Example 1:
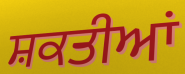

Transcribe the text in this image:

ਸ਼ਕਤੀਆਂ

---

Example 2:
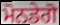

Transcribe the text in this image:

ਮੋਨਡੇਗੋ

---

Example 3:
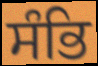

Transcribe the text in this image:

ਸੰਭਿ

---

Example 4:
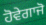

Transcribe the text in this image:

ਹੋਵੇਗਾਜੋ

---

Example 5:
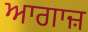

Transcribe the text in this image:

ਆਗਾਜ਼